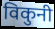
विकुनी